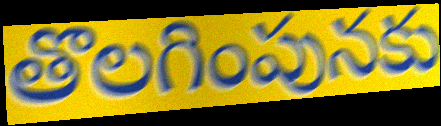
తొలగింపునకు